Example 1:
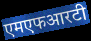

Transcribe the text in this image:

एमएफआरटी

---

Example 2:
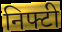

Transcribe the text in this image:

निफ्टी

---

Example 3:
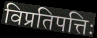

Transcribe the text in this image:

विप्रतिपत्तिः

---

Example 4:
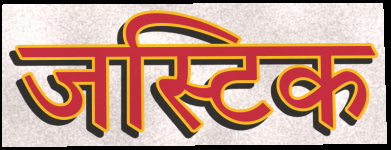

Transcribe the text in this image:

जस्टिक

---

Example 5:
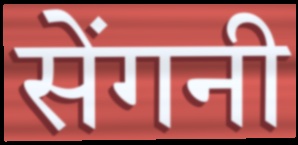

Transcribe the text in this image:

सेंगनी